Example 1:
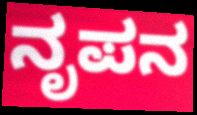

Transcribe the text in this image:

ನೃಪನ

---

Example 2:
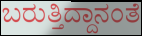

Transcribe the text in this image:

ಬರುತ್ತಿದ್ದಾನಂತೆ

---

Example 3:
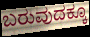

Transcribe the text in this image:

ಬರುವುದಕ್ಕೂ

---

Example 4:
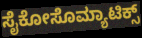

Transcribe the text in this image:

ಸೈಕೋಸೊಮ್ಯಾಟಿಕ್ಸ್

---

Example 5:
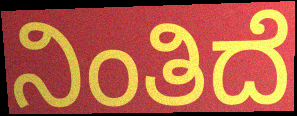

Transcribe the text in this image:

ನಿಂತಿದೆ